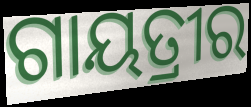
ଗାୟତ୍ରୀର